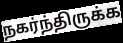
நகர்ந்திருக்க